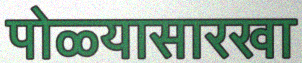
पोळ्यासारखा